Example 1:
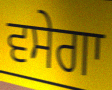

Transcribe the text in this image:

ਵਸੇਗਾ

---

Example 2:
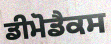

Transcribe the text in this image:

ਡੀਮੋਡੈਕਸ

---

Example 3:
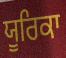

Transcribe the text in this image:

ਯੂਰਿਕਾ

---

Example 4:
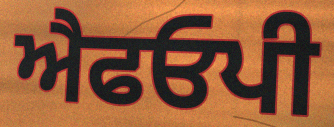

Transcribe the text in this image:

ਐਫਓਪੀ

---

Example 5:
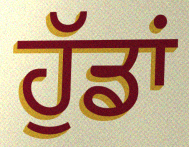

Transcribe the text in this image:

ਹੁੱਡਾਂ